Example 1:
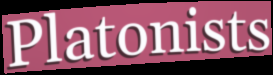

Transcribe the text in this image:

Platonists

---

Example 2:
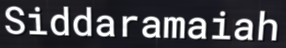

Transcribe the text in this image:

Siddaramaiah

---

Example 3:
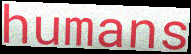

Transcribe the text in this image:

humans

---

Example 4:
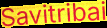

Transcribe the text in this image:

Savitribai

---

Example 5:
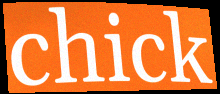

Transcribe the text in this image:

chick